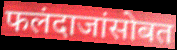
फलंदाजांसोबत